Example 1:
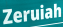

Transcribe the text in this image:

Zeruiah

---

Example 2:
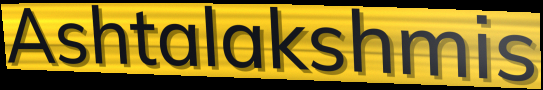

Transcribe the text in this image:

Ashtalakshmis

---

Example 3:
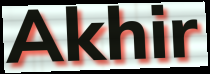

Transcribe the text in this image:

Akhir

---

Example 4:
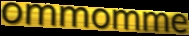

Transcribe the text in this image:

ommomme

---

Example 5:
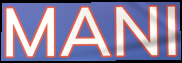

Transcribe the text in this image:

MANI